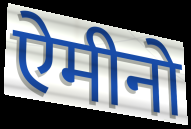
ऐमीनो